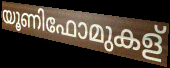
യൂണിഫോമുകള്